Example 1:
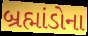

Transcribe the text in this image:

બ્રહ્માંડોના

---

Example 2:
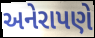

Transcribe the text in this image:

અનેરાપણે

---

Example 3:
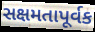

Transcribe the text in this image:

સક્ષમતાપૂર્વક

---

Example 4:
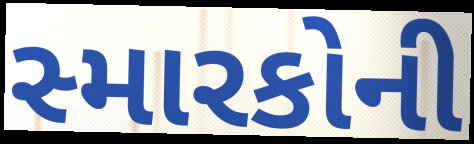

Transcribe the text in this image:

સ્મારકોની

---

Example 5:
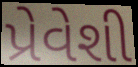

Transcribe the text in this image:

પ્રેવેશી